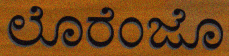
ಲೊರೆಂಜೊ